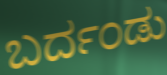
ಬರ್ದಂಡು